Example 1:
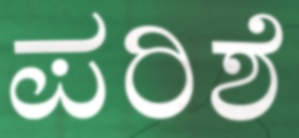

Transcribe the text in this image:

ಪರಿಶೆ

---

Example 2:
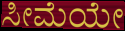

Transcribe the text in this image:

ಸೀಮೆಯೇ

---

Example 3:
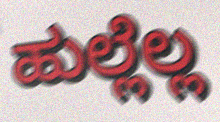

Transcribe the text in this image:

ಹುಲ್ಲೆಲ್ಲ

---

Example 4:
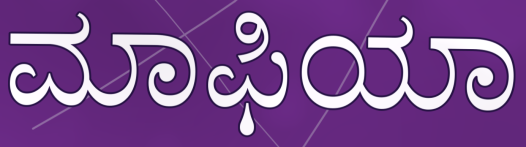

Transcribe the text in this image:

ಮಾಫಿಯಾ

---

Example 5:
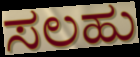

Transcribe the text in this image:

ಸಲಹು